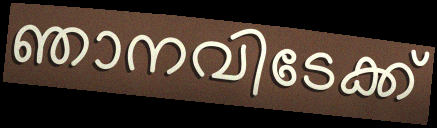
ഞാനവിടേക്ക്